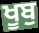
ਖੂਬੁ